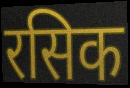
रसिक